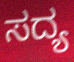
ಸದ್ಯ